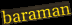
baraman